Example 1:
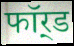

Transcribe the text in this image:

फॉर्ड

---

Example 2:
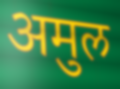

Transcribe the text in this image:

अमुल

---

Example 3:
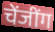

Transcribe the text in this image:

चेंजींग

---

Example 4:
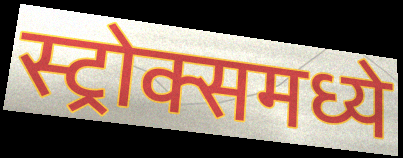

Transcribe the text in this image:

स्ट्रोक्समध्ये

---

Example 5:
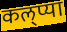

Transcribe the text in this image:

कल्प्या